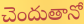
చెందుతానో